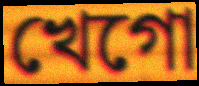
খেগো